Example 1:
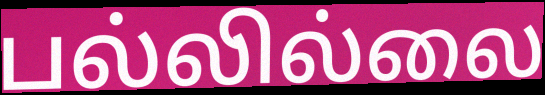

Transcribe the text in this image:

பல்லில்லை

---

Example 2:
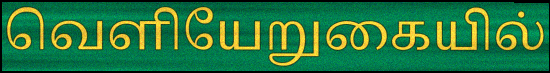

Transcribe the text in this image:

வெளியேறுகையில்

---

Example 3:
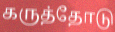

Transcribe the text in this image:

கருத்தோடு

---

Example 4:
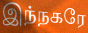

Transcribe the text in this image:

இந்நகரே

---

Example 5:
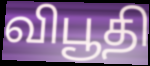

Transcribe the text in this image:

விபூதி